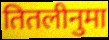
तितलीनुमा